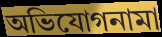
অভিযোগনামা